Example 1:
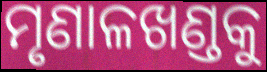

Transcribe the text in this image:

ମୃଣାଳଖଣ୍ଡକୁ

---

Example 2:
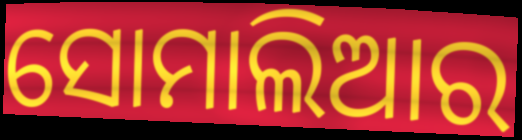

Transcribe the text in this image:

ସୋମାଲିଆର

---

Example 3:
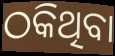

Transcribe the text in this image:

ଠକିଥିବା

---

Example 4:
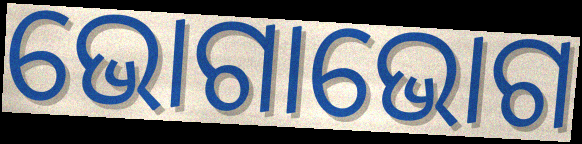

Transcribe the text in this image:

ଭୋଗାଭୋଗ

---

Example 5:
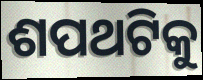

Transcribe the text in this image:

ଶପଥଟିକୁ